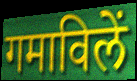
गमाविलें